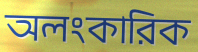
অলংকারিক